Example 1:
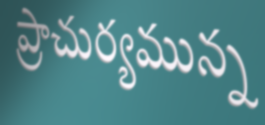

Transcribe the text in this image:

ప్రాచుర్యమున్న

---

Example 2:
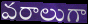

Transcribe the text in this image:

వరాలుగా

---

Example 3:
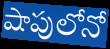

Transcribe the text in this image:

షాపులోనో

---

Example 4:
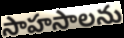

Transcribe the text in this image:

సాహసాలను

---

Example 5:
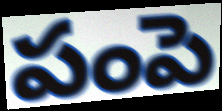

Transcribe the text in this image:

పంపె